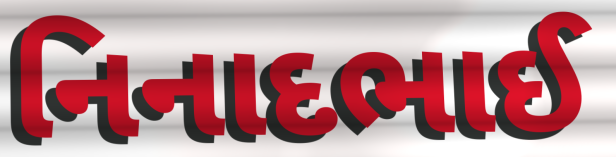
નિનાદભાઈ